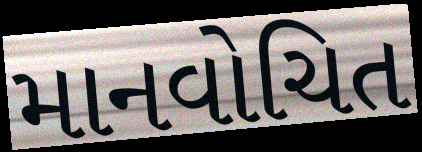
માનવોચિત